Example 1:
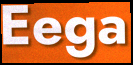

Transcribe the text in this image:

Eega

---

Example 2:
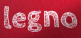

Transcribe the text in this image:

legno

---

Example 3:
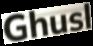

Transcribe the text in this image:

Ghusl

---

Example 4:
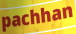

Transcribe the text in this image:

pachhan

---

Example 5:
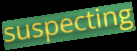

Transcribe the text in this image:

suspecting